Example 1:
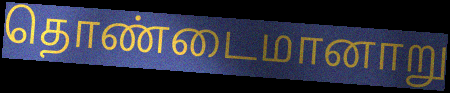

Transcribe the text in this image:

தொண்டைமானாறு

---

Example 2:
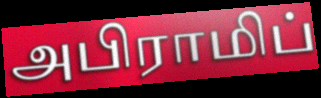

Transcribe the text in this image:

அபிராமிப்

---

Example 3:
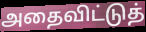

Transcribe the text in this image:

அதைவிட்டுத்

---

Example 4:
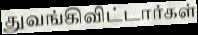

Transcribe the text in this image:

துவங்கிவிட்டார்கள்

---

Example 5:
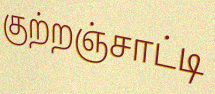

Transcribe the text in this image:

குற்றஞ்சாட்டி